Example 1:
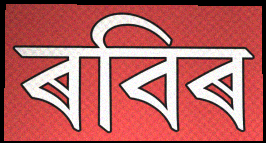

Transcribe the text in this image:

ৰবিৰ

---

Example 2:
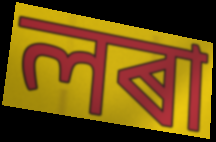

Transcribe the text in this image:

লৰা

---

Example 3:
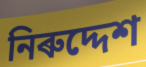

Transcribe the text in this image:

নিৰুদ্দেশ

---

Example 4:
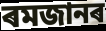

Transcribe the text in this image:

ৰমজানৰ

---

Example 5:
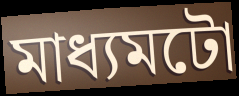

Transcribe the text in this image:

মাধ্যমটো